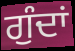
ਗੁੰਦਾਂ